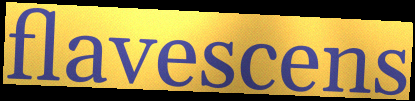
flavescens